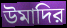
উমাদির